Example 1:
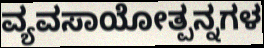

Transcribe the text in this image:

ವ್ಯವಸಾಯೋತ್ಪನ್ನಗಳ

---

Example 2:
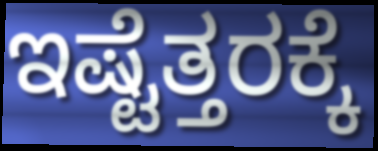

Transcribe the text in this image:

ಇಷ್ಟೆತ್ತರಕ್ಕೆ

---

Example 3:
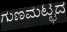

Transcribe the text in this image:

ಗುಣಮಟ್ಟದ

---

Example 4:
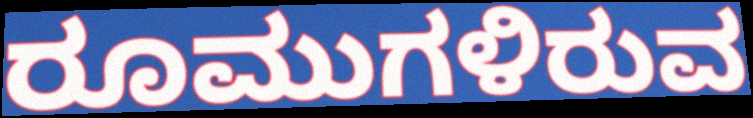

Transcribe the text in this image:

ರೂಮುಗಳಿರುವ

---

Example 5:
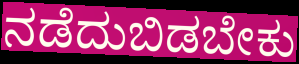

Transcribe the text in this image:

ನಡೆದುಬಿಡಬೇಕು